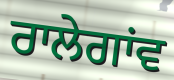
ਰਾਲੇਗਾਂਵ